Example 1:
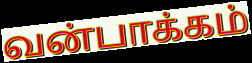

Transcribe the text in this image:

வன்பாக்கம்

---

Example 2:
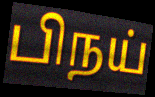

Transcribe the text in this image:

பிநய்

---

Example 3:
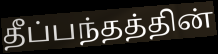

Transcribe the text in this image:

தீப்பந்தத்தின்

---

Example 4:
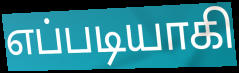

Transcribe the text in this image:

எப்படியாகி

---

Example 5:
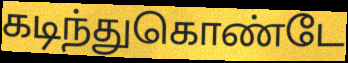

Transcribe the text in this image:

கடிந்துகொண்டே